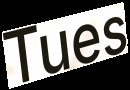
Tues